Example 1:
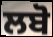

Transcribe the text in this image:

ਲਬੋ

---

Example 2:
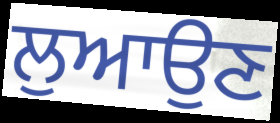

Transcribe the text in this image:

ਲੁਆਉਣ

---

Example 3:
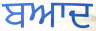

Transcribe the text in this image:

ਬਆਦ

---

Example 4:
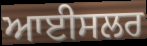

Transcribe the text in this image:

ਆਈਸਲਰ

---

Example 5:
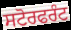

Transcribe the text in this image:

ਸਟੋਰਫਰੰਟ